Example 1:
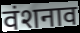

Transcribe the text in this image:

वंशनाव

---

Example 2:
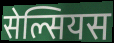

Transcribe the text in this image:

सेल्सियस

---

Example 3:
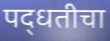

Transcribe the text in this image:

पद्धतीचा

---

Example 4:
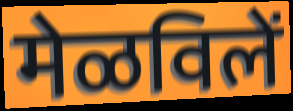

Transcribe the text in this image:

मेळविलें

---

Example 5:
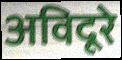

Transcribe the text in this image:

अविदूरे